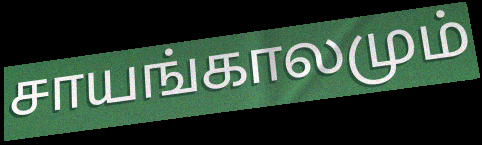
சாயங்காலமும்